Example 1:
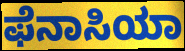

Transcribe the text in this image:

ಫೆನಾಸಿಯಾ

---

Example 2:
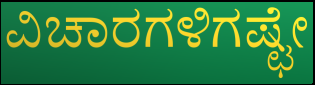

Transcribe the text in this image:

ವಿಚಾರಗಳಿಗಷ್ಟೇ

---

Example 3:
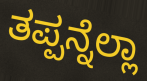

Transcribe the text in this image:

ತಪ್ಪನ್ನೆಲ್ಲಾ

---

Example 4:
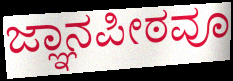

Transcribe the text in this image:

ಜ್ಞಾನಪೀಠವೂ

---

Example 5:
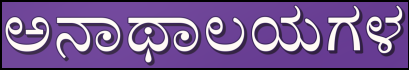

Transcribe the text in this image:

ಅನಾಥಾಲಯಗಳ